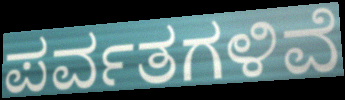
ಪರ್ವತಗಳಿವೆ